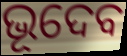
ଭୂଦେବ